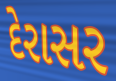
દેરાસર